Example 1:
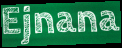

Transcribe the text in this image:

Ejnana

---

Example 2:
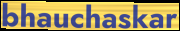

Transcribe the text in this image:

bhauchaskar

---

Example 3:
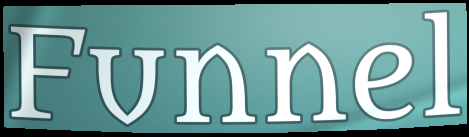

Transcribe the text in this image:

Funnel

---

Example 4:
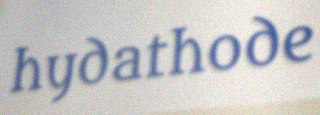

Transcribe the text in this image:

hydathode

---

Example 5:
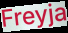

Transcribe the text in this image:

Freyja